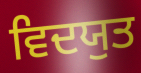
ਵਿਦਯੁਤ